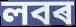
লবৰ